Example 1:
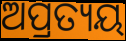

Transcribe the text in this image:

ଅପ୍ରତ୍ୟୟ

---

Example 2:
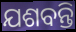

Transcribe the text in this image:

ଯଶବନ୍ତି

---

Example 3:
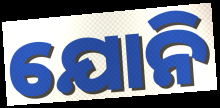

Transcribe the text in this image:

ଯୋନି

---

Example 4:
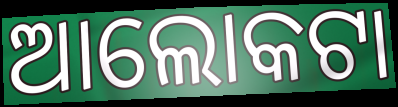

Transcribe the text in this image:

ଆଲୋକଟା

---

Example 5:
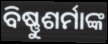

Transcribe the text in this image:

ବିଷ୍ଣୁଶର୍ମାଙ୍କ